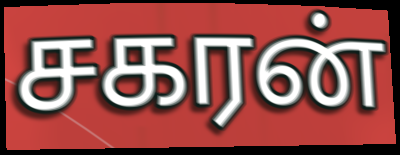
சகரன்